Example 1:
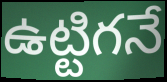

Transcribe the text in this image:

ఉట్టిగనే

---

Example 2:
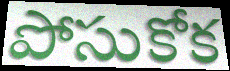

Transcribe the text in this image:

పోసుకోక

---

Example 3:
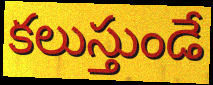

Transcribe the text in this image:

కలుస్తుండే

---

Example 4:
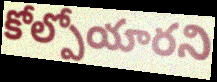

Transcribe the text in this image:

కోల్పోయారని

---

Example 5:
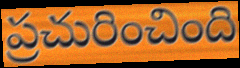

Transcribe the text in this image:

ప్రచురించింది